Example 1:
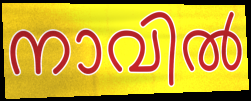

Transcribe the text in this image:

നാവിൽ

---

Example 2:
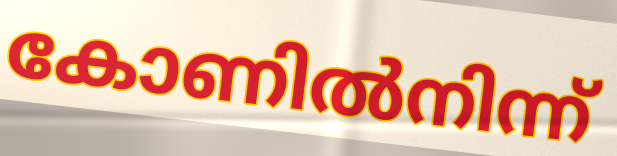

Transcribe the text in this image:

കോണിൽനിന്ന്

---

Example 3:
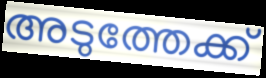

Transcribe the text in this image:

അടുത്തേക്ക്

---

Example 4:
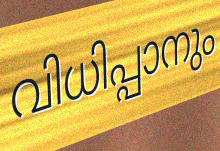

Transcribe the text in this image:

വിധിപ്പാനും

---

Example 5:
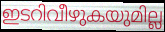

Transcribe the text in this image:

ഇടറിവീഴുകയുമില്ല